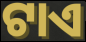
ଟାଏ